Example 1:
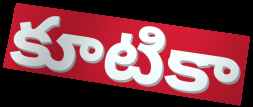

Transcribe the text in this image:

కూటికా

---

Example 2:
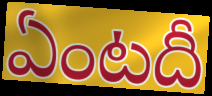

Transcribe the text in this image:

ఏంటదీ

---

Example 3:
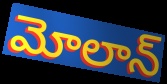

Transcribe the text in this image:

మోలాన్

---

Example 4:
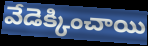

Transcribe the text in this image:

వేడెక్కించాయి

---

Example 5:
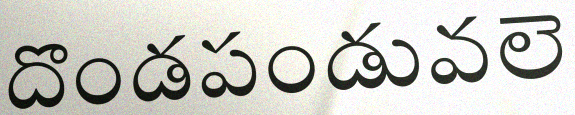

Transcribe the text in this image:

దొండపండువలె